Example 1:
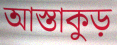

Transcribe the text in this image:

আস্তাকুড়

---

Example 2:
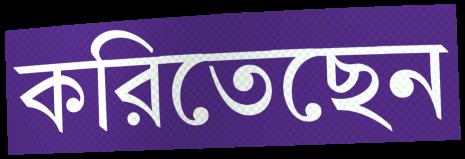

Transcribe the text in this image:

করিতেছেন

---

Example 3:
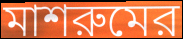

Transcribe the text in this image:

মাশরুমের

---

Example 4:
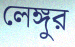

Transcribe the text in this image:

লেঙ্গুর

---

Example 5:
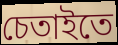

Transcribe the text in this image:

চেতাইতে